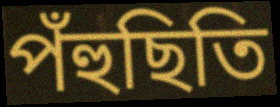
পঁহুছিতি